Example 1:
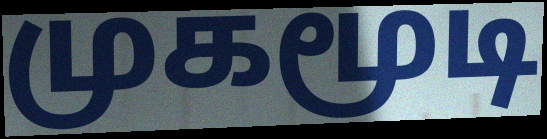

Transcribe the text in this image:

முகமூடி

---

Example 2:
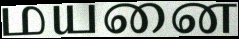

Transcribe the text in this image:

மயனை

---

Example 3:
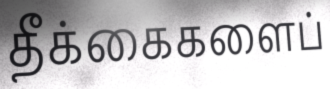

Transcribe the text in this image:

தீக்கைகளைப்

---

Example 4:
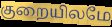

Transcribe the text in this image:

குறையிலமே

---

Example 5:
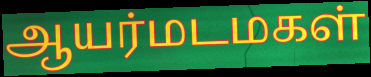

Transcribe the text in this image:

ஆயர்மடமகள்